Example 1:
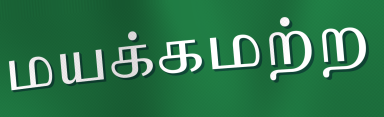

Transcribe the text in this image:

மயக்கமற்ற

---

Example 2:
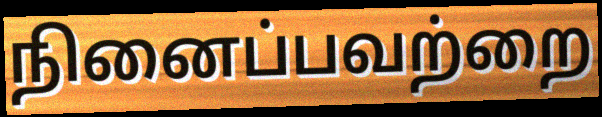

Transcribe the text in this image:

நினைப்பவற்றை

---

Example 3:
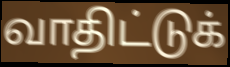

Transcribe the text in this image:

வாதிட்டுக்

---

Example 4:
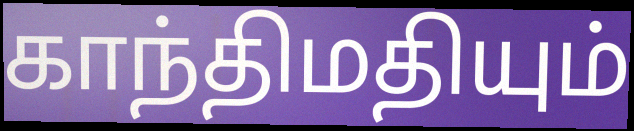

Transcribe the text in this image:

காந்திமதியும்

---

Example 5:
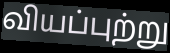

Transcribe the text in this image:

வியப்புற்று